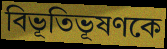
বিভূতিভূষণকে